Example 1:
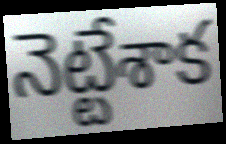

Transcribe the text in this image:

నెట్టేశాక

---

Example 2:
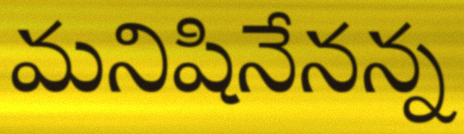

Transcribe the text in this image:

మనిషినేనన్న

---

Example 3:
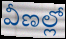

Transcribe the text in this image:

వీణల్లో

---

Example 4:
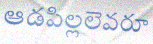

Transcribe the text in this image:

ఆడపిల్లలెవరూ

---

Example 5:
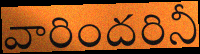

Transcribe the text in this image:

వారిందరినీ